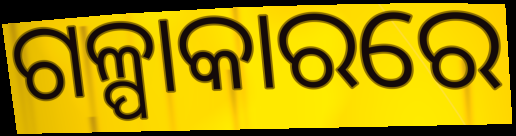
ଗଳ୍ପାକାରରେ